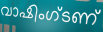
വാഷിംഗ്ടണ്